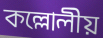
কল্লোলীয়